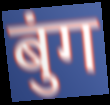
बुंग